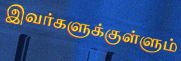
இவர்களுக்குள்ளும்